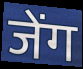
जेंग